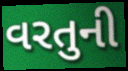
વરતુની